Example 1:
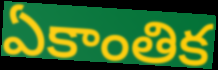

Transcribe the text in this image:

ఏకాంతిక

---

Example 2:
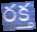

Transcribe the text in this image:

రక్త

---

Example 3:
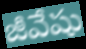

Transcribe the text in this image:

జీవేషు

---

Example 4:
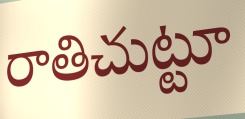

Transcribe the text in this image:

రాతిచుట్టూ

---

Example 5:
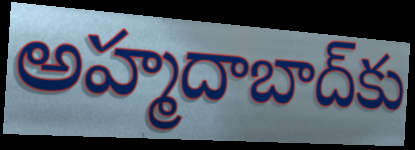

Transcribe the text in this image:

అహ్మదాబాద్‌కు